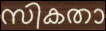
സികതാ